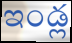
ఇండ్ల